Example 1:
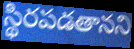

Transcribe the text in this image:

స్థిరపడతానని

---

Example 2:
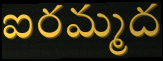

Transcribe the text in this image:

ఐరమ్మద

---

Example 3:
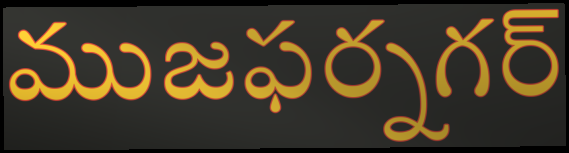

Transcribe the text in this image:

ముజఫర్నగర్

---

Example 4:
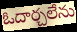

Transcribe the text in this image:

ఓదార్చలేను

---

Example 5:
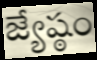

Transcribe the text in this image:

జ్యేష్ఠం